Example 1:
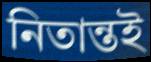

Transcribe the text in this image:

নিতান্তই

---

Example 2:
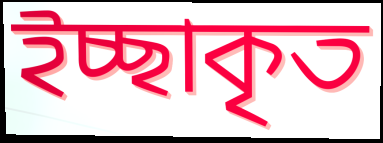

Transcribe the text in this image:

ইচ্ছাকৃত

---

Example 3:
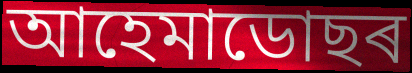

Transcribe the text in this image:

আহেমাডোছৰ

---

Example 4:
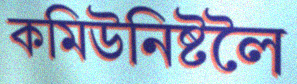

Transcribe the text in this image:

কমিউনিষ্টলৈ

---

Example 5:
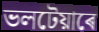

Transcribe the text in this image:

ভলটেয়াৰে